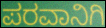
ಪರವಾನಿಗಿ